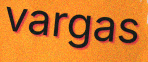
vargas